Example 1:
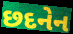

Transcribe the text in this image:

છદનેન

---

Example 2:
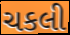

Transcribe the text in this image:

ચકલી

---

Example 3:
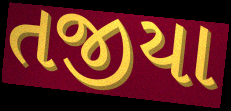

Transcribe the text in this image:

તજીયા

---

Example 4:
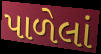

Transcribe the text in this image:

પાળેલાં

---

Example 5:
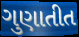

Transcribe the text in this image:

ગુણાતીત